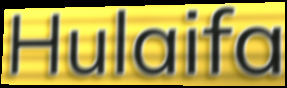
Hulaifa